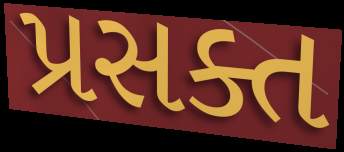
પ્રસક્ત